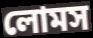
লোমস